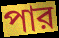
পার